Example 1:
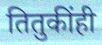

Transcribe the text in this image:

तितुकींही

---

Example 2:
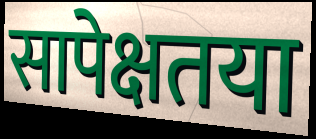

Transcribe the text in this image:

सापेक्षतया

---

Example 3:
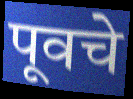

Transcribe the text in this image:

पूवचे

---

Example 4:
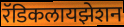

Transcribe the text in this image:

रॅडिकलायझेशन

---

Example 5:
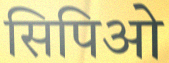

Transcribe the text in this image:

सिपिओ